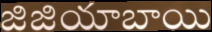
జిజియాబాయి